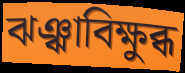
ঝঞ্ঝাবিক্ষুব্ধ